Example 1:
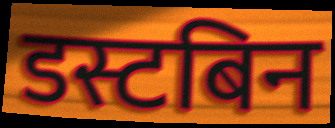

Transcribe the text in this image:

डस्टबिन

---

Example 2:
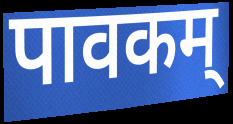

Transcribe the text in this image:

पावकम्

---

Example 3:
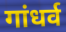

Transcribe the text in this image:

गांधर्व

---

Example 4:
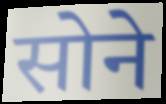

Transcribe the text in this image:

सोने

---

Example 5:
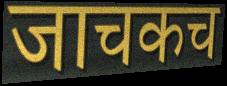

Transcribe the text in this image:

जाचकच